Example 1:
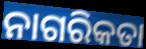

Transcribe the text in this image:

ନାଗରିକତା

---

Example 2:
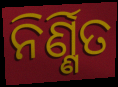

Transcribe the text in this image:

ନିର୍ଣ୍ଣିତ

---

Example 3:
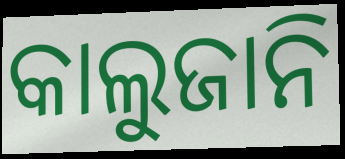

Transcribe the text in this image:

କାଲୁଜାନି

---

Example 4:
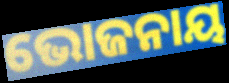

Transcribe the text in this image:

ଭୋଜନାୟ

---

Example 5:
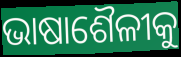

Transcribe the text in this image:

ଭାଷାଶୈଳୀକୁ